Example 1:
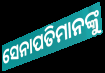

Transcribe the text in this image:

ସେନାପତିମାନଙ୍କୁ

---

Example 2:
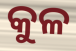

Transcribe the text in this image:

କୁଳ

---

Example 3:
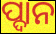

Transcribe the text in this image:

ପ୍ଦାନ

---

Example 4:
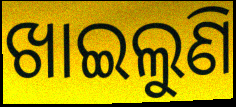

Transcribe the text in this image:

ଖାଇଲୁଣି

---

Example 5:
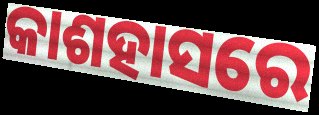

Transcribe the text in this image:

କାଶହାସରେ